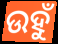
ଉହୁଁ